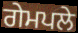
ਗੇਮਪਲੇ